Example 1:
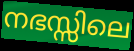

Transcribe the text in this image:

നഭസ്സിലെ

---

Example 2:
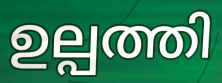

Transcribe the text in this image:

ഉല്പത്തി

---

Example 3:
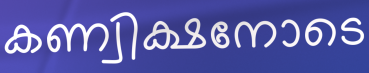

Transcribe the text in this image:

കണ്വിക്ഷനോടെ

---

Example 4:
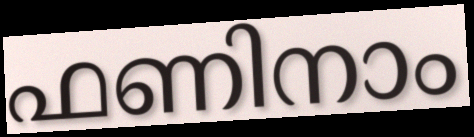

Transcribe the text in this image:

ഫണിനാം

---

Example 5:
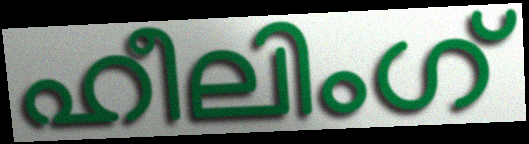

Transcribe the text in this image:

ഹീലിംഗ്